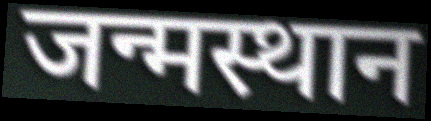
जन्मस्थान